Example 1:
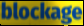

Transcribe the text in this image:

blockage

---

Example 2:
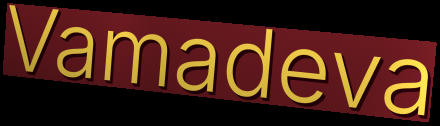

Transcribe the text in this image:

Vamadeva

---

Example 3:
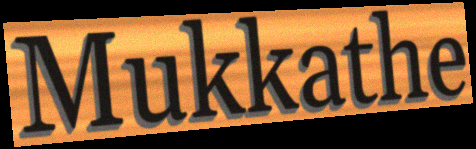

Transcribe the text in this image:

Mukkathe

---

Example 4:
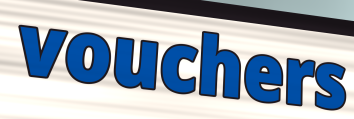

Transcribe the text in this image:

vouchers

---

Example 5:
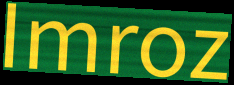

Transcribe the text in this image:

Imroz